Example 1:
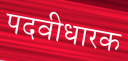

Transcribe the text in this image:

पदवीधारक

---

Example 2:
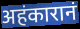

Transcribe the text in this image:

अहंकारानं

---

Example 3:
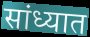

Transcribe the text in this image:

सांध्यात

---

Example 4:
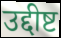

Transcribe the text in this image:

उद्दीष्ट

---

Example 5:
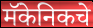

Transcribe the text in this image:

मॅकेनिकचे